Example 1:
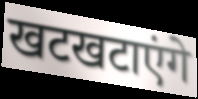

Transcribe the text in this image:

खटखटाएंगे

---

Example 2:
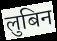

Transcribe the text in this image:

लुबिन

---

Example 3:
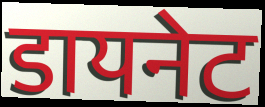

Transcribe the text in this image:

डायनेट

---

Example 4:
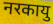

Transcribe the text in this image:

नरकायु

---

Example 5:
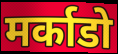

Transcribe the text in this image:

मर्काडो